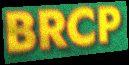
BRCP